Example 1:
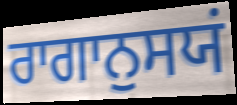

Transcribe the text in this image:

ਰਾਗਾਨੁਸਯਂ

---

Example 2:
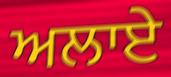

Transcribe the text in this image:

ਅਲਾਏ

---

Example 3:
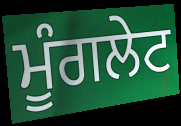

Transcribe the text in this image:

ਮੂੰਗਲੇਟ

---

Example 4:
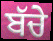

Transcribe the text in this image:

ਬੱਚੇ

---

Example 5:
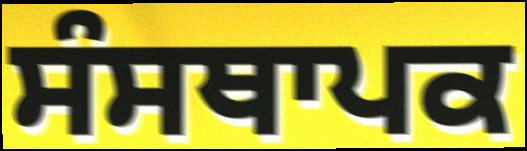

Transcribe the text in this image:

ਸੰਸਥਾਪਕ